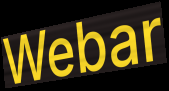
Webar